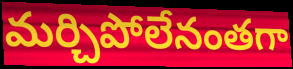
మర్చిపోలేనంతగా